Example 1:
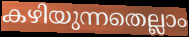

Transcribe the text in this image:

കഴിയുന്നതെല്ലാം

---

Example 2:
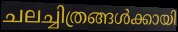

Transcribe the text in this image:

ചലച്ചിത്രങ്ങൾക്കായി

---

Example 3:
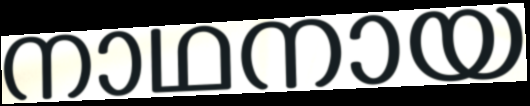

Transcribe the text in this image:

നാഥനായ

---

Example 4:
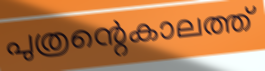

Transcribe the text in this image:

പുത്രന്റെകാലത്ത്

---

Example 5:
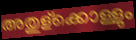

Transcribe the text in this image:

അതുള്ക്കൊള്ളും